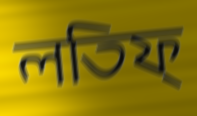
লতিফ্